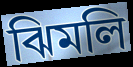
ঝিমলি